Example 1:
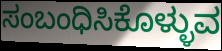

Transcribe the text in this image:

ಸಂಬಂಧಿಸಿಕೊಳ್ಳುವ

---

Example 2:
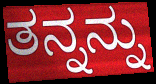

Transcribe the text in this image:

ತನ್ನನ್ನು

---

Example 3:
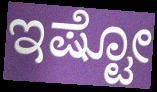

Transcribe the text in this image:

ಇಷ್ಟೋ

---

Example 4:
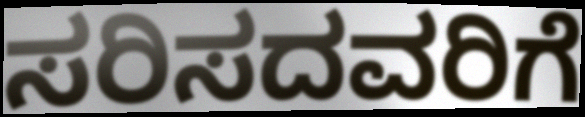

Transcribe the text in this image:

ಸರಿಸದವರಿಗೆ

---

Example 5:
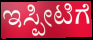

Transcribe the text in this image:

ಇಸ್ಪೀಟಿಗೆ